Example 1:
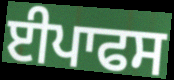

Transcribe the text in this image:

ਈਪਾਫਸ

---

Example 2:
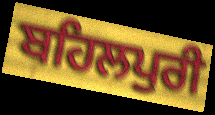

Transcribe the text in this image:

ਬਹਿਲਪੁਰੀ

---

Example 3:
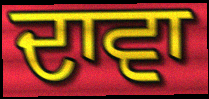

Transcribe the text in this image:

ਦਾਵਾ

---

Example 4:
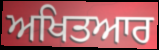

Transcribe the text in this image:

ਅਖਿਤਆਰ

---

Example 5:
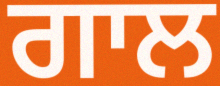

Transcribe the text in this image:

ਗਾਲ